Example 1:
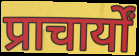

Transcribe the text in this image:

प्राचार्यों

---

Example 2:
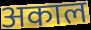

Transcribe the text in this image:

अकाल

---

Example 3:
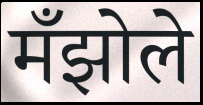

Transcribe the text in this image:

मँझोले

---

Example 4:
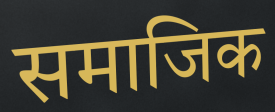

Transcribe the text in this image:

समाजिक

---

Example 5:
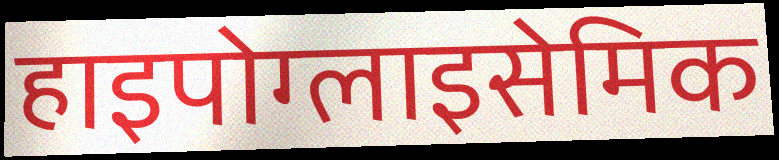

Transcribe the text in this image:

हाइपोग्लाइसेमिक